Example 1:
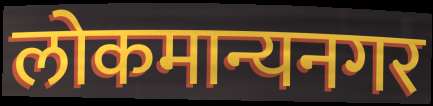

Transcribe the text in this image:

लोकमान्यनगर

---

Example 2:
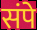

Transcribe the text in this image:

संपे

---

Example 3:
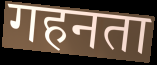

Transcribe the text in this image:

गहनता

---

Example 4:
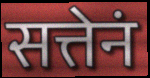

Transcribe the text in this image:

सत्तेनं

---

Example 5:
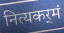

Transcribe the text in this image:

नित्यकर्मं